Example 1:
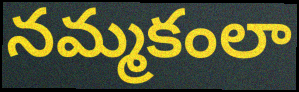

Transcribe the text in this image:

నమ్మకంలా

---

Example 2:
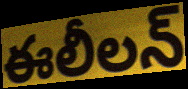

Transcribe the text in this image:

ఈలీలన్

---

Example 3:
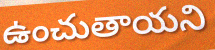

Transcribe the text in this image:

ఉంచుతాయని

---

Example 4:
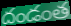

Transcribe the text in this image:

దండంత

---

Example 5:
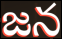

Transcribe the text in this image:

జన